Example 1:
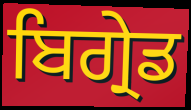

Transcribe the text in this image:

ਬਿਗ੍ਰੇਡ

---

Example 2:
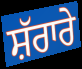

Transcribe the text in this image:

ਸ਼ੱਰਾਰੇ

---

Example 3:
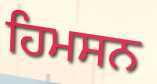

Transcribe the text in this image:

ਹਿਮਸਨ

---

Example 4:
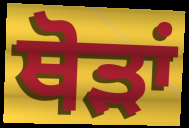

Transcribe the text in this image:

ਥੋੜਾਂ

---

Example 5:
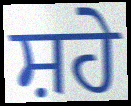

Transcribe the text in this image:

ਸ਼ਹੇ